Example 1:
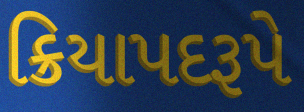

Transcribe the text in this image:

ક્રિયાપદરૂપે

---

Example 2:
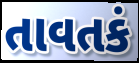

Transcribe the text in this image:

તાવતકં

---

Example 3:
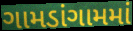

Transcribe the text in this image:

ગામડાંગામમાં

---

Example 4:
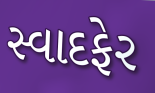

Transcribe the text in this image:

સ્વાદફેર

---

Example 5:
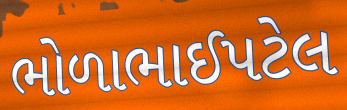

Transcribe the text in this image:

ભોળાભાઈપટેલ